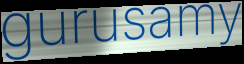
gurusamy